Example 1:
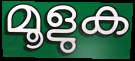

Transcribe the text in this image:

മൂളുക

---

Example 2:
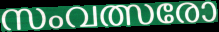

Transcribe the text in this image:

സംവത്സരോ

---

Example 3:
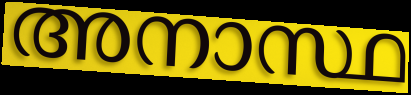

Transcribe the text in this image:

അനാസ്ഥ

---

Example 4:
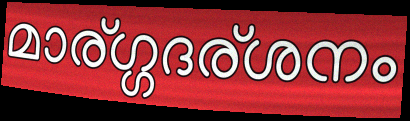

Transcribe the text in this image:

മാര്ഗ്ഗദര്ശനം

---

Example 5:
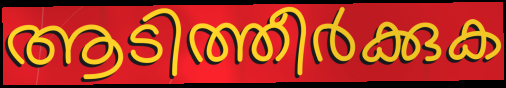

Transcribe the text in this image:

ആടിത്തീർക്കുക